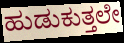
ಹುಡುಕುತ್ತಲೇ